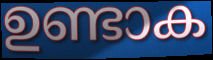
ഉണ്ടാക